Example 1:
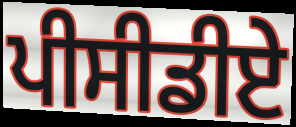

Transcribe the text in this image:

ਪੀਸੀਡੀਏ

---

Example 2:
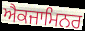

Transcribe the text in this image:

ਐਕਜਾਮਿਨਰ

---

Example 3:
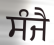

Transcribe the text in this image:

ਸੰਜੈ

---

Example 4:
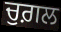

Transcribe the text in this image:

ਚੁਗ਼ਲ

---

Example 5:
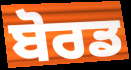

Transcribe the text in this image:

ਬੋਰਡ